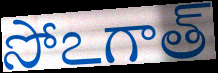
సోఽగాత్